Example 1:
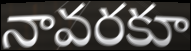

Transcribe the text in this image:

నావరకూ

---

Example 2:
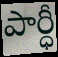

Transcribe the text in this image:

పార్ధీ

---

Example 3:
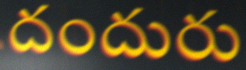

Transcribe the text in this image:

దందురు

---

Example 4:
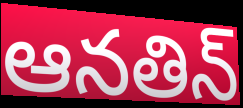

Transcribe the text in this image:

ఆనతిన్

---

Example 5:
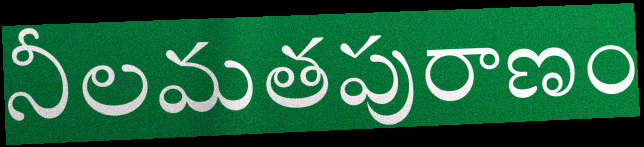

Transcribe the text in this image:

నీలమతపురాణం